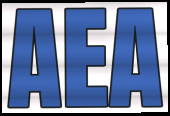
AEA